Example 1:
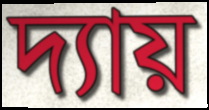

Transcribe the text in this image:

দ্যায়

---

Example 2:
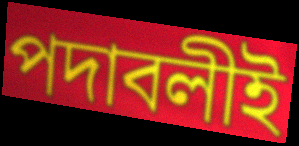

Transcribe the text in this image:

পদাবলীই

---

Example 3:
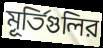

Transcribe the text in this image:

মূর্তিগুলির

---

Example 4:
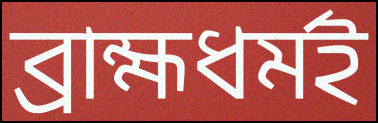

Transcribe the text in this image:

ব্রাহ্মধর্মই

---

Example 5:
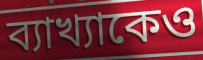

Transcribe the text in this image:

ব্যাখ্যাকেও